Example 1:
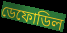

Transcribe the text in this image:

ডেফোডিল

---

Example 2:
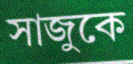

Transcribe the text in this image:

সাজুকে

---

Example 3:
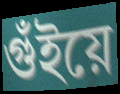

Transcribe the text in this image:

গুঁইয়ে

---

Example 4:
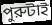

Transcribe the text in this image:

পুরুটাই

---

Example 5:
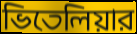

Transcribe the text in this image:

ভিতেলিয়ার